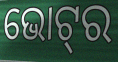
ଭୋଟ୍‍ର